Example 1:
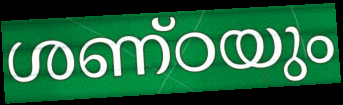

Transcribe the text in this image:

ശണ്ഠയും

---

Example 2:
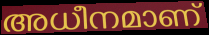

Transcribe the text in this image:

അധീനമാണ്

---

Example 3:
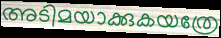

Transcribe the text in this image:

അടിമയാക്കുകയത്രേ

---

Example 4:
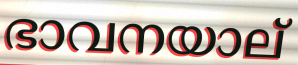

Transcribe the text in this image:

ഭാവനയാല്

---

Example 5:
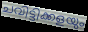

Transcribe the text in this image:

ചവിട്ടിക്കളയും